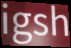
igsh